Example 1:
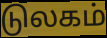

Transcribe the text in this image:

டுலகம்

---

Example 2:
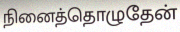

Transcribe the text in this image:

நினைத்தொழுதேன்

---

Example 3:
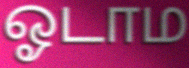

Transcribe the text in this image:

ஓடாம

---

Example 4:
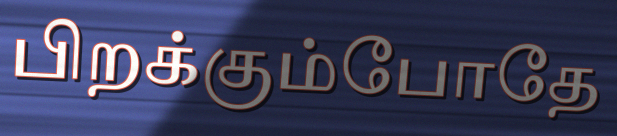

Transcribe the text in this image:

பிறக்கும்போதே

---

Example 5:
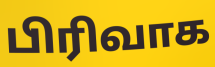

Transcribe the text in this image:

பிரிவாக